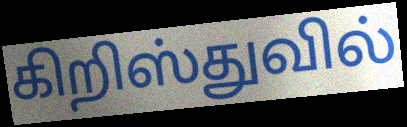
கிறிஸ்துவில்